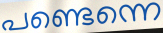
പണ്ടെന്നെ